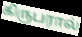
கிருபரால்